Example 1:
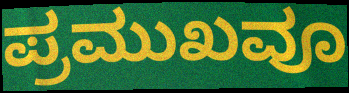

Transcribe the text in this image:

ಪ್ರಮುಖವೂ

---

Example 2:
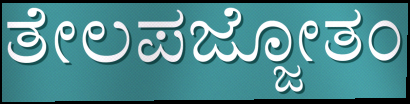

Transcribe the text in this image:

ತೇಲಪಜ್ಜೋತಂ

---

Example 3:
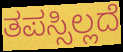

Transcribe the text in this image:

ತಪಸ್ಸಿಲ್ಲದೆ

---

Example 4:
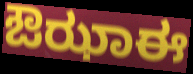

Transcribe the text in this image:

ಔಝಾಈ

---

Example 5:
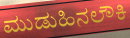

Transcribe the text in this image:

ಮುಡುಹಿನಲೌಕಿ